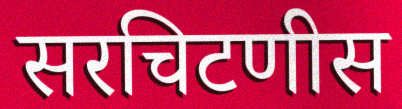
सरचिटणीस